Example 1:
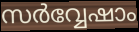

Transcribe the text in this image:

സർവ്വേഷാം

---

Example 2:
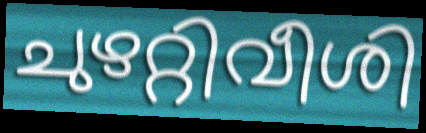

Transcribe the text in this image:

ചുഴറ്റിവീശി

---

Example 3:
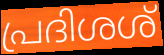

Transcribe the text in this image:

പ്രദിശശ്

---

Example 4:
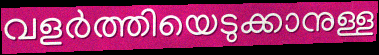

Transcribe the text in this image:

വളർത്തിയെടുക്കാനുള്ള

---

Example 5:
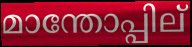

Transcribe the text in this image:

മാന്തോപ്പില്